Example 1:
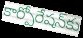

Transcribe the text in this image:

కార్పోరేషన్‌కు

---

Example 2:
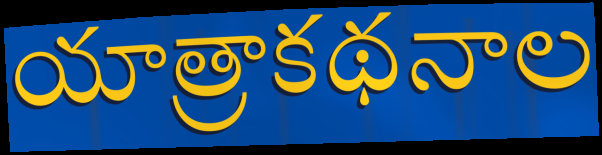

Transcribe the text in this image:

యాత్రాకథనాల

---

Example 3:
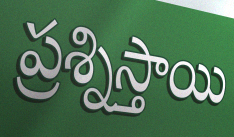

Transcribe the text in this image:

ప్రశ్నిస్తాయి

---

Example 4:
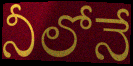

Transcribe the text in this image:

నీలోనే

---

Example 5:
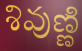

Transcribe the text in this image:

శివుణ్ణి